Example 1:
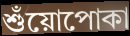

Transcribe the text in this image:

শুঁয়োপোকা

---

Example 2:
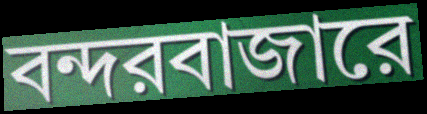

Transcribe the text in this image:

বন্দরবাজারে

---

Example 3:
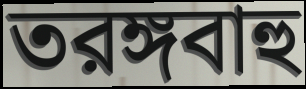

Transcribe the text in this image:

তরঙ্গবাহু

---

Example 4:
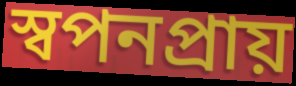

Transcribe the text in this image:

স্বপনপ্রায়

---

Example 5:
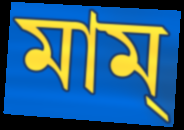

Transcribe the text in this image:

মাম্